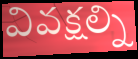
వివక్షల్ని